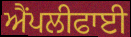
ਐਂਪਲੀਫਾਈ